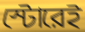
স্টোরেই